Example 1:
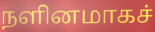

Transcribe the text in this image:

நளினமாகச்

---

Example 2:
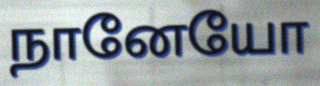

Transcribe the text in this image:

நானேயோ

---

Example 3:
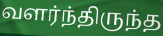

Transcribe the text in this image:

வளர்ந்திருந்த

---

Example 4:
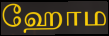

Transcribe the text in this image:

ஹோம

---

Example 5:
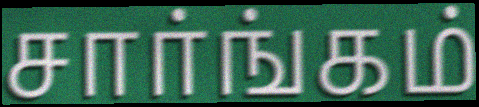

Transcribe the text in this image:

சார்ங்கம்